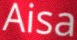
Aisa